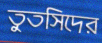
তুতসিদের